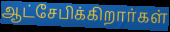
ஆட்சேபிக்கிறார்கள்